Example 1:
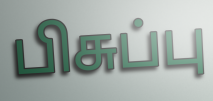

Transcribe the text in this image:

பிசுப்பு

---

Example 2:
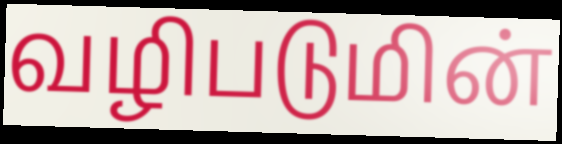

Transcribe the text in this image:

வழிபடுமின்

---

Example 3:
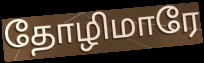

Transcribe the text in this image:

தோழிமாரே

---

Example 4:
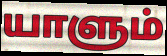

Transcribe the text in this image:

யாளும்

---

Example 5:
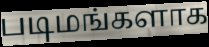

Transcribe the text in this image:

படிமங்களாக